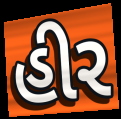
હીર